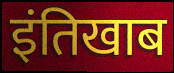
इंतिखाब